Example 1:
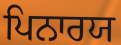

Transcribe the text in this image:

ਪਿਨਾਰਯ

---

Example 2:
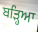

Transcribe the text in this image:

ਬੜ੍ਹਿਆ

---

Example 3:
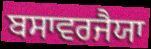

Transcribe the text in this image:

ਬਸਾਵਰਜੈਯਾ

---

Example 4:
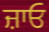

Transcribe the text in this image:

ਜ਼ਾਓ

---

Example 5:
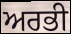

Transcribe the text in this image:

ਅਰਭੀ